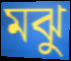
মঝু